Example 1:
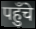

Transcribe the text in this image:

पहुँचे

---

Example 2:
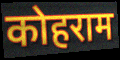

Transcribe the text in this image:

कोहराम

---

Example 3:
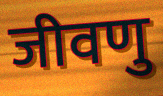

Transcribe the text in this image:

जीवणु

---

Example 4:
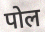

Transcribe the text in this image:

पोल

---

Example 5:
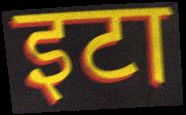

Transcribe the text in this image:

इटा